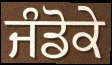
ਜੰਡੋਕੇ